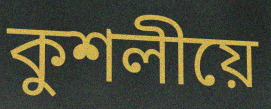
কুশলীয়ে